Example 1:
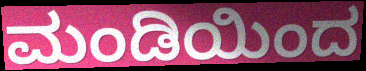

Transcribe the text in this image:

ಮಂಡಿಯಿಂದ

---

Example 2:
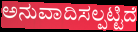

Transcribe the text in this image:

ಅನುವಾದಿಸಲ್ಪಟ್ಟಿದೆ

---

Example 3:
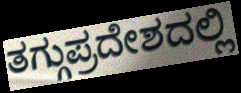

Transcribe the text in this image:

ತಗ್ಗುಪ್ರದೇಶದಲ್ಲಿ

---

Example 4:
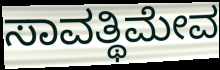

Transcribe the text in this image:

ಸಾವತ್ಥಿಮೇವ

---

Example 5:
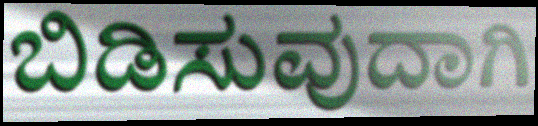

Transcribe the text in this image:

ಬಿಡಿಸುವುದಾಗಿ